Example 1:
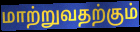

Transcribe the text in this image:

மாற்றுவதற்கும்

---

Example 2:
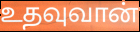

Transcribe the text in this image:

உதவுவான்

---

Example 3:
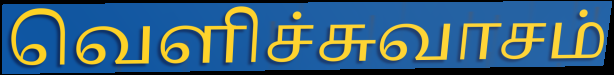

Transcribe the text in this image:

வெளிச்சுவாசம்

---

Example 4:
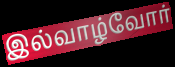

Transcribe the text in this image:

இல்வாழ்வோர்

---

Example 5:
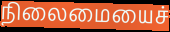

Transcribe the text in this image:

நிலைமையைச்